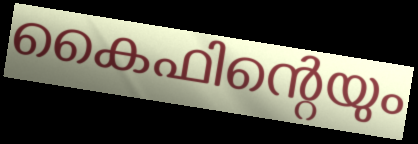
കൈഫിന്റെയും